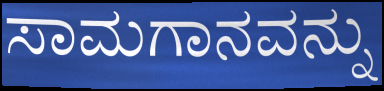
ಸಾಮಗಾನವನ್ನು